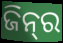
ଜିନ୍‌ର